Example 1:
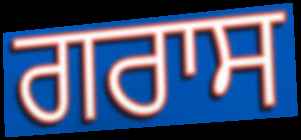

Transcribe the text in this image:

ਗਰਾਸ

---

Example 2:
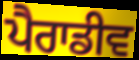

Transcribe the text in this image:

ਪੈਰਾਡੀਵ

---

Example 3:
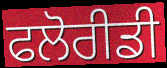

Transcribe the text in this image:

ਫਲੋਰੀਡੀ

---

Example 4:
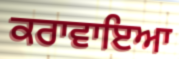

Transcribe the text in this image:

ਕਰਾਵਾਇਆ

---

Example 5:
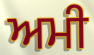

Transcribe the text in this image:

ਅਮੀ